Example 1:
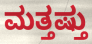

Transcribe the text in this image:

ಮತ್ತಷ್ತು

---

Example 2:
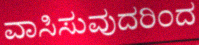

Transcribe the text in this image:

ವಾಸಿಸುವುದರಿಂದ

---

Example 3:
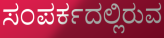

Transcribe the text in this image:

ಸಂಪರ್ಕದಲ್ಲಿರುವ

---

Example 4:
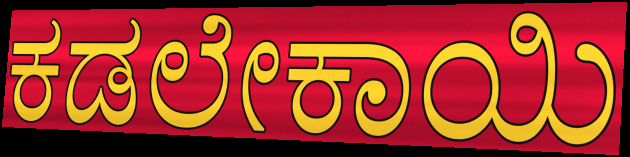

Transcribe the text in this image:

ಕಡಲೇಕಾಯಿ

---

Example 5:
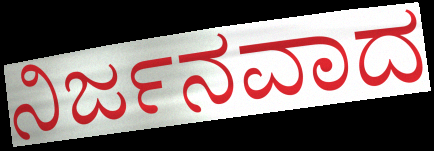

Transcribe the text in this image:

ನಿರ್ಜನವಾದ